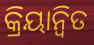
କ୍ରିୟାନ୍ୱିତ